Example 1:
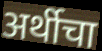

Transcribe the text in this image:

अर्थीचा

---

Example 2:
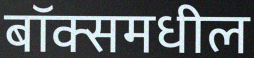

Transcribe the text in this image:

बॉक्समधील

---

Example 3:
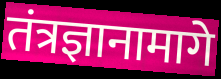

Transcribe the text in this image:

तंत्रज्ञानामागे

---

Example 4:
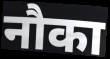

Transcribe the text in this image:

नौका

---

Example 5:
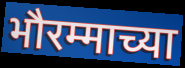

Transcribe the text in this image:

भौरम्माच्या